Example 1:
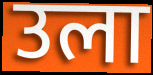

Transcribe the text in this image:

उला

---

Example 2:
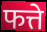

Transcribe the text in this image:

फत्ते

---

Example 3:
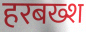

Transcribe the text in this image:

हरबख्श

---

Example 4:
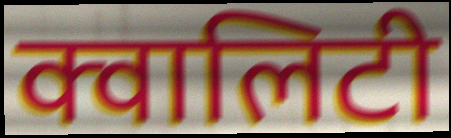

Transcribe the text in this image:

क्‍वालिटी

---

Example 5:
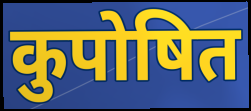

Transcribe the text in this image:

कुपोषित